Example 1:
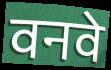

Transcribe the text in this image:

वनवे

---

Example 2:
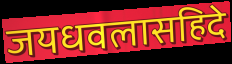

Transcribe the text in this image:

जयधवलासहिदे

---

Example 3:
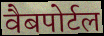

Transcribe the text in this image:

वैबपोर्टल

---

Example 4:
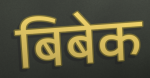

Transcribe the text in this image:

बिबेक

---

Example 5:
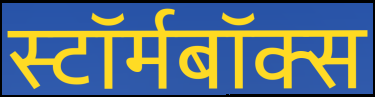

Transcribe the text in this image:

स्टॉर्मबॉक्स